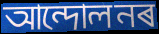
আন্দোলনৰ